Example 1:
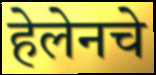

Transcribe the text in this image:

हेलेनचे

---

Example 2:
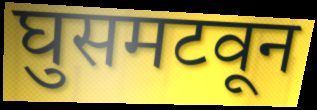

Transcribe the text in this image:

घुसमटवून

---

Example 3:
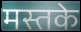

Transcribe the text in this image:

मस्तके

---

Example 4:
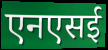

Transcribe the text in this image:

एनएसई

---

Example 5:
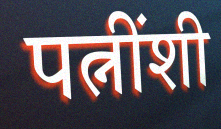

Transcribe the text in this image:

पत्नींशी